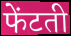
फेंटती